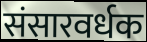
संसारवर्धक